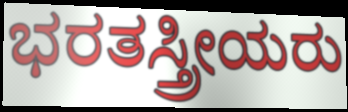
ಭರತಸ್ತ್ರೀಯರು